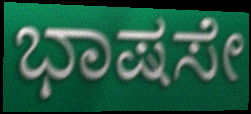
ಭಾಷಸೇ